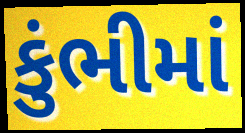
કુંભીમાં